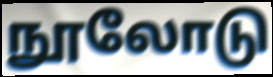
நூலோடு